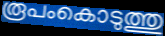
രൂപംകൊടുത്തു